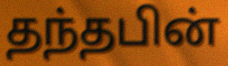
தந்தபின்